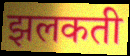
झलकती